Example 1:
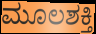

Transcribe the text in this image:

ಮೂಲಶಕ್ತಿ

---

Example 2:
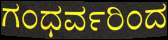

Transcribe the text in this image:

ಗಂಧರ್ವರಿಂದ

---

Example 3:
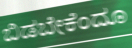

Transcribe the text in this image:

ಬಿಡಬೇಕೆಂದೂ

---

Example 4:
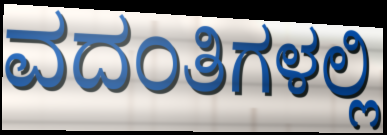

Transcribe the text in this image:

ವದಂತಿಗಳಲ್ಲಿ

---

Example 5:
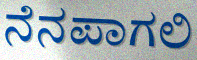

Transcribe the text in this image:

ನೆನಪಾಗಲಿ